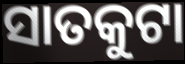
ସାତକୁଟା